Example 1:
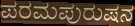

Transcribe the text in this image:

ಪರಮಪುರುಷನ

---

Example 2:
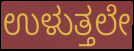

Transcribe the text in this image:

ಉಳುತ್ತಲೇ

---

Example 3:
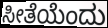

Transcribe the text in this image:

ಸೀತೆಯೆಂದು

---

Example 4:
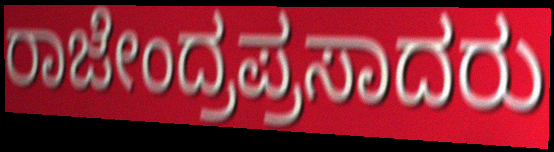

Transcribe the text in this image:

ರಾಜೇಂದ್ರಪ್ರಸಾದರು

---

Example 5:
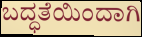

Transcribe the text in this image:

ಬದ್ಧತೆಯಿಂದಾಗಿ